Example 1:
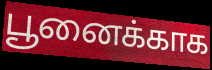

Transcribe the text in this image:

பூனைக்காக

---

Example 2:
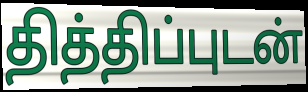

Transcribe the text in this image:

தித்திப்புடன்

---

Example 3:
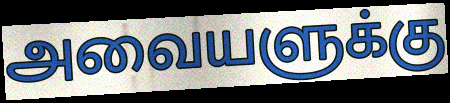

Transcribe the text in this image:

அவையளுக்கு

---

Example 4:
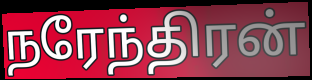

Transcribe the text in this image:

நரேந்திரன்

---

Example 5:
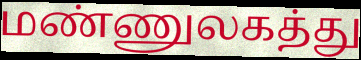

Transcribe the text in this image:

மண்ணுலகத்து